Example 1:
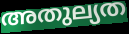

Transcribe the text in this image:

അതുല്യത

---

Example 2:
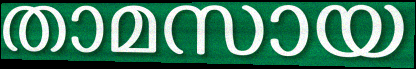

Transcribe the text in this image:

താമസായ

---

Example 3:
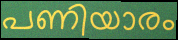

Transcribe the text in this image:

പണിയാരം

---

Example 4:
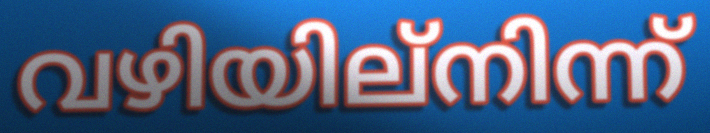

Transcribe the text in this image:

വഴിയില്നിന്ന്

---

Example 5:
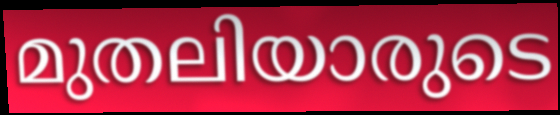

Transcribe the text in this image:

മുതലിയാരുടെ